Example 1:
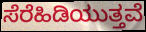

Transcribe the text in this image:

ಸೆರೆಹಿಡಿಯುತ್ತವೆ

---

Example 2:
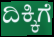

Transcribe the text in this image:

ದಿಕ್ಕಿಗೆ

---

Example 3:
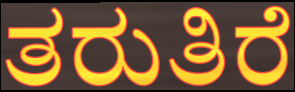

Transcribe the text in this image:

ತರುತಿರೆ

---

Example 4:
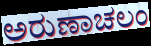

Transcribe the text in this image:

ಅರುಣಾಚಲಂ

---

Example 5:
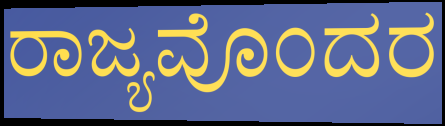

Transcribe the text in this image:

ರಾಜ್ಯವೊಂದರ